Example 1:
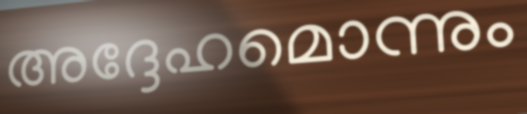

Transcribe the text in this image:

അദ്ദേഹമൊന്നും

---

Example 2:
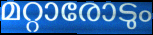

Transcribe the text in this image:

മറ്റാരോടും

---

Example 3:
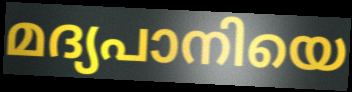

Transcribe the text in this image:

മദ്യപാനിയെ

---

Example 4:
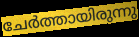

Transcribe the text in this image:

ചേർത്തായിരുന്നു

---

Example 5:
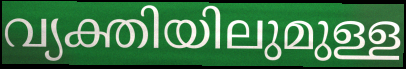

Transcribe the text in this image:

വ്യക്തിയിലുമുള്ള